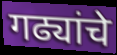
गढ्यांचे